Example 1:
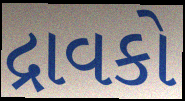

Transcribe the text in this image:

દ્રાવકો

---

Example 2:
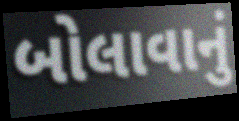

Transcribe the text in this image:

બોલાવાનું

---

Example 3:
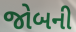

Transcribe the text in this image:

જોબની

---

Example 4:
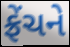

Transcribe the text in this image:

ફ્રેંચને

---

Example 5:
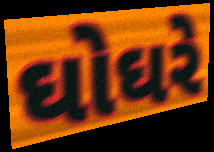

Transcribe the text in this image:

ઘોઘરે